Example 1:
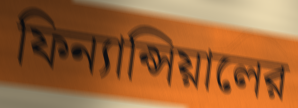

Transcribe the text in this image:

ফিন্যান্সিয়ালের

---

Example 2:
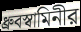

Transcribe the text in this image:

ধ্রুবস্বামিনীর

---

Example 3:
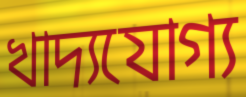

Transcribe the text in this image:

খাদ্যযোগ্য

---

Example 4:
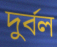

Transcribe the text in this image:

দুর্বল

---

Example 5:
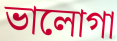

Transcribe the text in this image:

ভালোগা